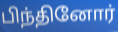
பிந்தினோர்